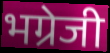
भग्रेजी